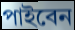
পাইবেন